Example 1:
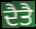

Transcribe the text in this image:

ਦੈਤੈ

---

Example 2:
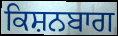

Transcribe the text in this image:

ਕਿਸ਼ਨਬਾਗ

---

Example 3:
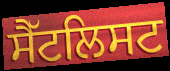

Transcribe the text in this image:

ਸੈੱਟਲਿਸਟ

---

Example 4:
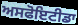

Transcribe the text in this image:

ਅਸਫੋਇਟੀਡਾ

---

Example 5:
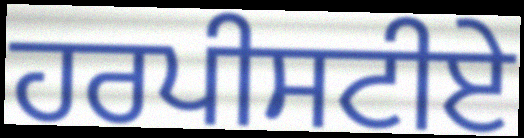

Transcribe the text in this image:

ਹਰਪੀਸਟੀਏ